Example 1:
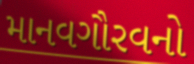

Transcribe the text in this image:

માનવગૌરવનો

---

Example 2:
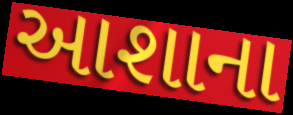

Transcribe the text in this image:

આશાના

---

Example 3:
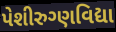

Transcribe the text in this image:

પેશીરુગ્ણવિદ્યા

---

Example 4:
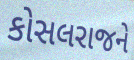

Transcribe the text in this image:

કોસલરાજને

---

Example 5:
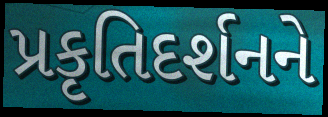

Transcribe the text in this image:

પ્રકૃતિદર્શનને